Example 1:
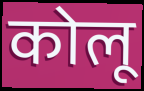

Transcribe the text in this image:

कोलू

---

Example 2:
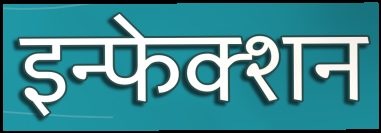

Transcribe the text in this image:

इन्‍फेक्‍शन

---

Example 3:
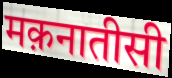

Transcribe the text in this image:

मक़नातीसी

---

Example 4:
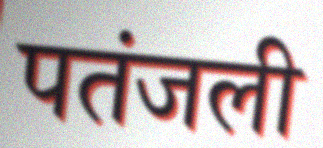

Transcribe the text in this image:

पतंजली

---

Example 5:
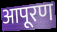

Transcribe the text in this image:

आपूरण